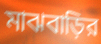
মাঝবাড়ির